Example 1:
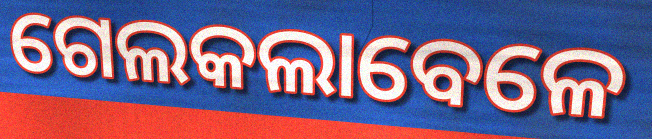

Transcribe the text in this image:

ଗେଲକଲାବେଳେ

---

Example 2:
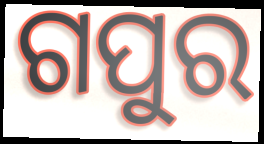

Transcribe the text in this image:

ଗପୁର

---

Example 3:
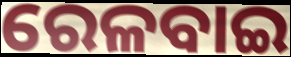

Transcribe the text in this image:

ରେଳବାଇ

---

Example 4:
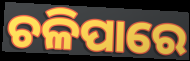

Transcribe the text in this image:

ଚଳିପାରେ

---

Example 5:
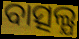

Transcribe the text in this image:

ବାତ୍ସଲ୍ଯ